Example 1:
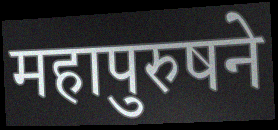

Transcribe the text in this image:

महापुरुषने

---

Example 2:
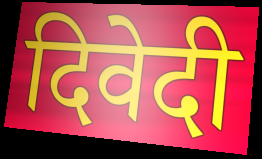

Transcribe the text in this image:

दिवेदी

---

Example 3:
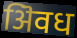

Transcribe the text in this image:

ऄिवध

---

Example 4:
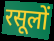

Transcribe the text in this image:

रसूलों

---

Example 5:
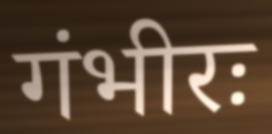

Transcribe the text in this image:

गंभीरः